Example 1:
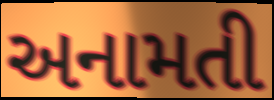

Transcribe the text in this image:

અનામતી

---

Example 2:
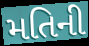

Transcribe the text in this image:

મતિની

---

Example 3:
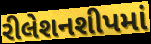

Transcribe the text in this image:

રીલેશનશીપમાં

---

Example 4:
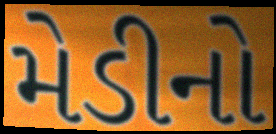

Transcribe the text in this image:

મેડીનો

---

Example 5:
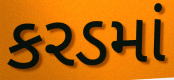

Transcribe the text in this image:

કરડમાં